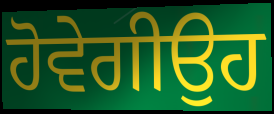
ਹੋਵੇਗੀਉਹ